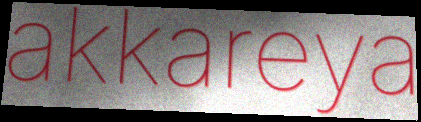
akkareya